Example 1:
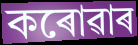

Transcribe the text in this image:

কৰোৱাৰ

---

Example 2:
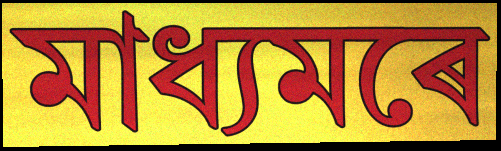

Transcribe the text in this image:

মাধ্যমৰে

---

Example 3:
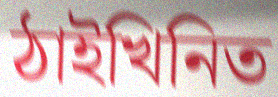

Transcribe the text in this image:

ঠাইখিনিত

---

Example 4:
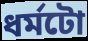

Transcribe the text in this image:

ধৰ্মটো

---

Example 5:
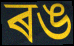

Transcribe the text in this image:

ৰঙ